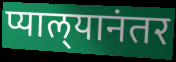
प्याल्यानंतर